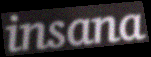
insana